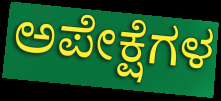
ಅಪೇಕ್ಷೆಗಳ